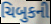
ચિબુકની